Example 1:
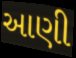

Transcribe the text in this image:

આણી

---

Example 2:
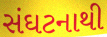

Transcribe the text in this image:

સંઘટનાથી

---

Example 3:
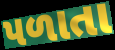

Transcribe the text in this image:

પળાતા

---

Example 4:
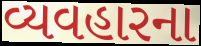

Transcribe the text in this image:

વ્યવહારના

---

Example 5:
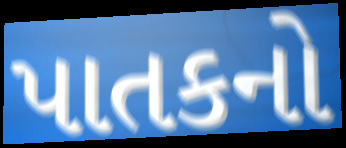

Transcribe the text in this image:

પાતકનો